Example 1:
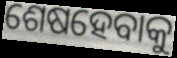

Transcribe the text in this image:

ଶେଷହେବାକୁ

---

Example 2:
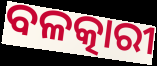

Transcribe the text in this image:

ବଳତ୍କାରୀ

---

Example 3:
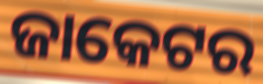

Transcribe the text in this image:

ଜାକେଟର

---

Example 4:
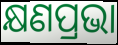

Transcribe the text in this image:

କ୍ଷଣପ୍ରଭା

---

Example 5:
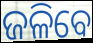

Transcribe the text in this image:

ଜଳିବେ